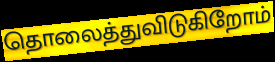
தொலைத்துவிடுகிறோம்